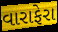
વારાફેરા